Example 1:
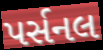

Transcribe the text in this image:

પર્સનલ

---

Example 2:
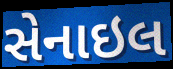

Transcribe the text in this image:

સેનાઇલ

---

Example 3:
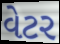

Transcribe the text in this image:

વેટર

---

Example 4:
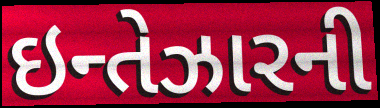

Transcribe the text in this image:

ઇન્તેઝારની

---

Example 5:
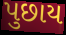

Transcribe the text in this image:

પુછાય